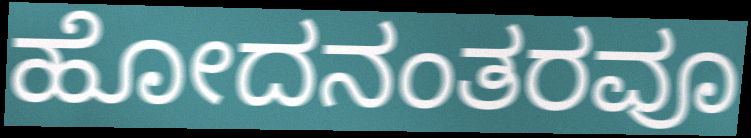
ಹೋದನಂತರವೂ